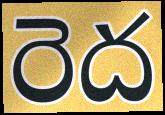
రెద